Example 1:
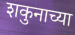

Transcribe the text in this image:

शकुनाच्या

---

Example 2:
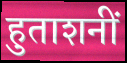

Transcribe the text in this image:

हुताशनीं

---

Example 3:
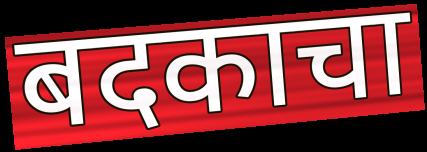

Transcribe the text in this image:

बदकाचा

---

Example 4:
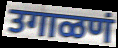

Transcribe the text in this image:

उगाळणं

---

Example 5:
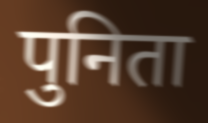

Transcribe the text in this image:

पुनिता